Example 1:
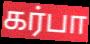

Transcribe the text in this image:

கர்பா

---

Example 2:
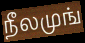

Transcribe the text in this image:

நீலமுங்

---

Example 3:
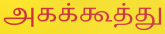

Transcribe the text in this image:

அகக்கூத்து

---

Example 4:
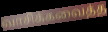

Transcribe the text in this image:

வாசிக்கவைத்த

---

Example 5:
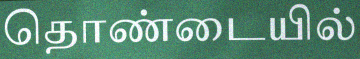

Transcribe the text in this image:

தொண்டையில்